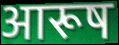
आरूष